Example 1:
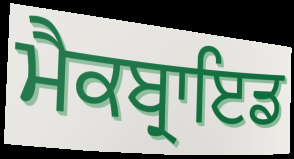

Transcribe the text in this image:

ਮੈਕਬ੍ਰਾਇਡ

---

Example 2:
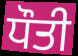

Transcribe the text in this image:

ਧੌਤੀ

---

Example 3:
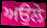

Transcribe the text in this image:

ਅਉਲੇ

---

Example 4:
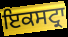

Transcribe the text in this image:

ਇਕਸਟ੍ਰਾ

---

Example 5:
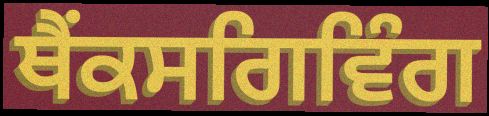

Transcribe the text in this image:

ਥੈਂਕਸਗਿਵਿੰਗ